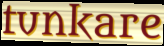
tunkare